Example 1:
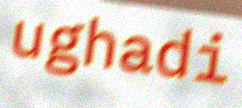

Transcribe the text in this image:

ughadi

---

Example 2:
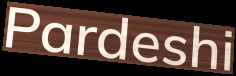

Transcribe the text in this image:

Pardeshi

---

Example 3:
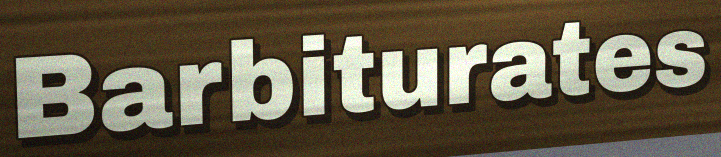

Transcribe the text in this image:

Barbiturates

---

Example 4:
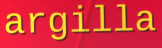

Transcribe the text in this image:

argilla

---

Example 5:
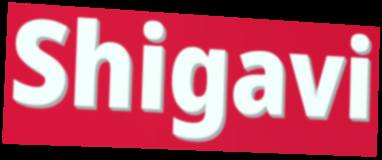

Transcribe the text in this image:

Shigavi